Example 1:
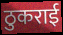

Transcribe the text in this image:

ठुकराई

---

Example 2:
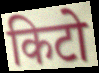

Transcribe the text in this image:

किटो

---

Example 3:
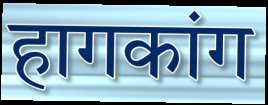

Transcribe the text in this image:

हागकांग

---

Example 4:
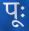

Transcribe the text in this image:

पूः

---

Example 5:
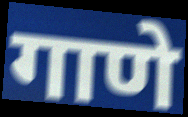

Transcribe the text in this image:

गाणे